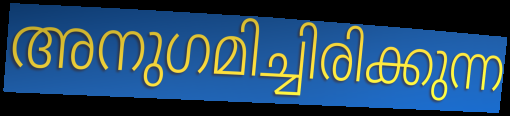
അനുഗമിച്ചിരിക്കുന്ന